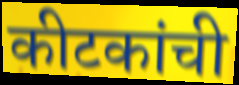
कीटकांची